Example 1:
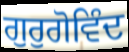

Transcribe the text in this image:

ਗੁਰੁਗੋਵਿੰਦ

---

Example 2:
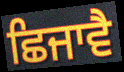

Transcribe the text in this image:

ਛਿਜਾਵੈ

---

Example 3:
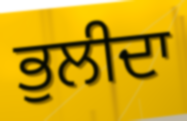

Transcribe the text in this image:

ਭੁਲੀਦਾ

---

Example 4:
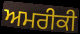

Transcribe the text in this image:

ਅਮਰੀਕੀ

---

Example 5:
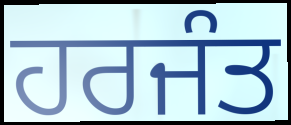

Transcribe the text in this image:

ਹਰਜੰਤ